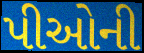
પીઓની